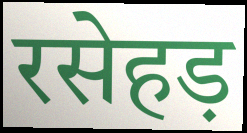
रसेहड़